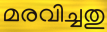
മരവിച്ചതു